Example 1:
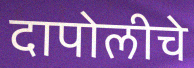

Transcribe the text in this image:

दापोलीचे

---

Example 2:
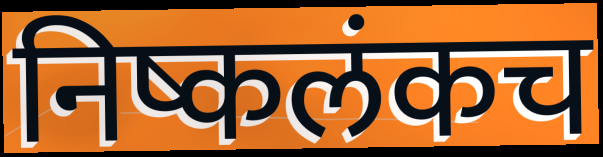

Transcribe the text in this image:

निष्कलंकच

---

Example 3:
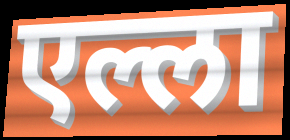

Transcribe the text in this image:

एल्ला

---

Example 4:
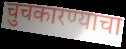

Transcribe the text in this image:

चुचकारण्याचा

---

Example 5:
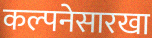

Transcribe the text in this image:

कल्पनेसारखा